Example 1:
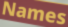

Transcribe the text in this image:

Names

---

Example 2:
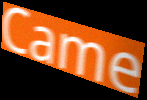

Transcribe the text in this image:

Came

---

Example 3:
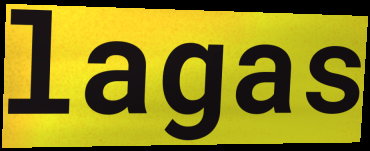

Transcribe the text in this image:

lagas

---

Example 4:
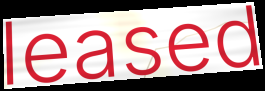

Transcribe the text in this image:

leased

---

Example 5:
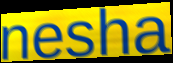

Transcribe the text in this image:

nesha